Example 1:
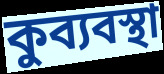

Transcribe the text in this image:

কুব্যবস্থা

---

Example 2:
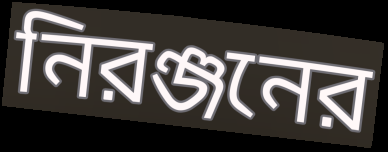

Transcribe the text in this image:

নিরঞ্জনের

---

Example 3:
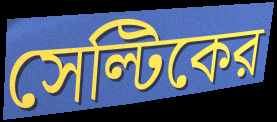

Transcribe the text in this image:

সেল্টিকের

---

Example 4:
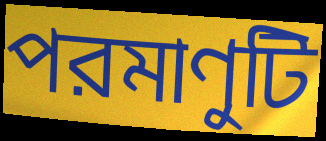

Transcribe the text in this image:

পরমাণুটি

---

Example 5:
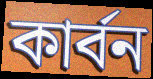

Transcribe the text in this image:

কার্বন